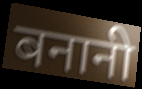
बनानी